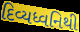
દિવ્યધ્વનિથી